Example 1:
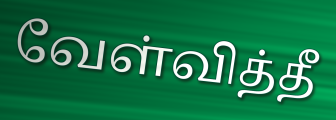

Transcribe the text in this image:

வேள்வித்தீ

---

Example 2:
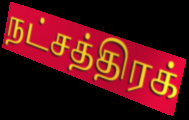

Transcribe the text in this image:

நட்சத்திரக்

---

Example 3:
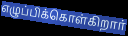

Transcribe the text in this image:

எழுப்பிக்கொள்கிறார்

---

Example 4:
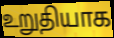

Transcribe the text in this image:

உறுதியாக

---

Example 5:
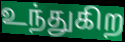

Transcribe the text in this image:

உந்துகிற